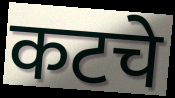
कटचे